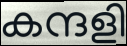
കന്ദളി